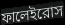
ফালেইরোস